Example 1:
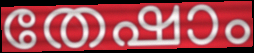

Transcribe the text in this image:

തേഷാം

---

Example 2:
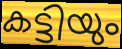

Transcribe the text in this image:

കട്ടിയും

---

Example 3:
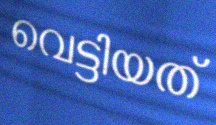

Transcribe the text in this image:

വെട്ടിയത്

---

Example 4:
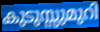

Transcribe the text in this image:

കുടുസ്സുമുറി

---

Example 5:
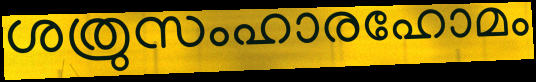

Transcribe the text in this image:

ശത്രുസംഹാരഹോമം